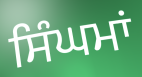
ਸਿੰਘਮਾਂ